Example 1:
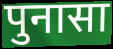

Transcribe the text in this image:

पुनासा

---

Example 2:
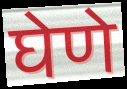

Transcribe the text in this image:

घेणे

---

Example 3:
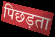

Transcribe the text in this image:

पिछड़ता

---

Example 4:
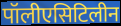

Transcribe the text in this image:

पॉलीएसिटिलीन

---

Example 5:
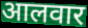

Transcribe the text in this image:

आलवार